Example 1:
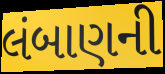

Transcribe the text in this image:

લંબાણની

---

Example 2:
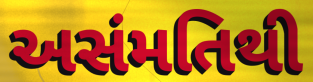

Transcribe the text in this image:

અસંમતિથી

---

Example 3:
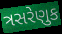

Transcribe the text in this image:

ત્રસરેણુક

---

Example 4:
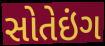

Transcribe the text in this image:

સોતેઇંગ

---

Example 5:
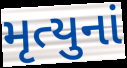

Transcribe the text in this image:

મૃત્યુનાં